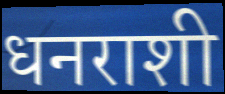
धनराशी